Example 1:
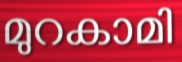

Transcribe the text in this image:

മുറകാമി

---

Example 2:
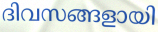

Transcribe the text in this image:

ദിവസങ്ങളായി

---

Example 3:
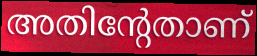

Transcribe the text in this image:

അതിന്റേതാണ്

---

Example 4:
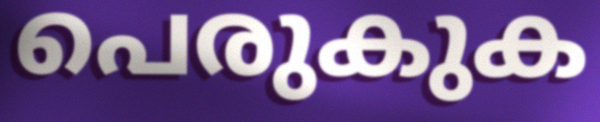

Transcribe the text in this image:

പെരുകുക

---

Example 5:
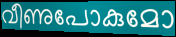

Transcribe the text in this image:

വീണുപോകുമോ